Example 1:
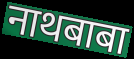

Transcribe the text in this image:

नाथबाबा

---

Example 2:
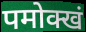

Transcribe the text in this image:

पमोक्खं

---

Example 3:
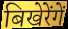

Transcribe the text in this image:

बिखेरेंगें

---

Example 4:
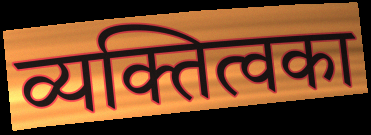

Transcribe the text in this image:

व्यक्तित्वका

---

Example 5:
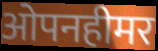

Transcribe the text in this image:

ओपनहीमर